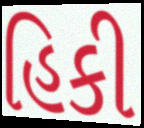
હિકી